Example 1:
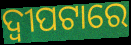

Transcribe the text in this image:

ଦ୍ୱୀପଟାରେ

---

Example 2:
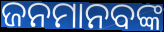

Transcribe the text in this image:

ଜନମାନବଙ୍କ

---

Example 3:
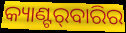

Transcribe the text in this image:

କ୍ୟାଣ୍ଟର୍‌ବାରିର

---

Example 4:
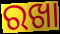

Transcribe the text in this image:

ରଖା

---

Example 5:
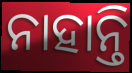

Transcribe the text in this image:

ନାହାନ୍ତି